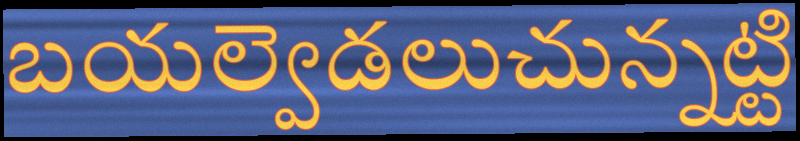
బయల్వెడలుచున్నట్టి